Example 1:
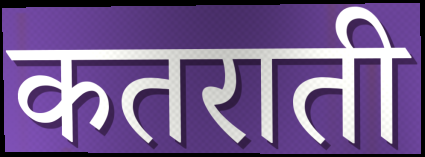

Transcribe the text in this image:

कतराती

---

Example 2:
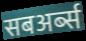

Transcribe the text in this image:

सबअर्ब्स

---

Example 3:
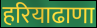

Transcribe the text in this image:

हरियाढाणा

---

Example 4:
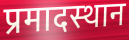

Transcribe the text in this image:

प्रमादस्थान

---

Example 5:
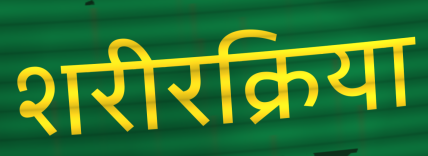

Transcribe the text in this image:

शरीरक्रिया